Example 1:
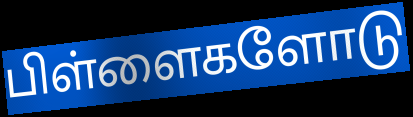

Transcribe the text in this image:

பிள்ளைகளோடு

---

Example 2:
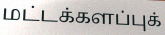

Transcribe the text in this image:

மட்டக்களப்புக்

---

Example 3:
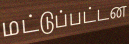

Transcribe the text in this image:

மட்டுப்பட்டன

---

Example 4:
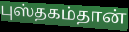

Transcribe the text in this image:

புஸ்தகம்தான்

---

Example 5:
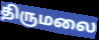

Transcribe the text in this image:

திருமலை